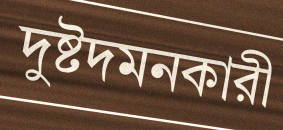
দুষ্টদমনকারী